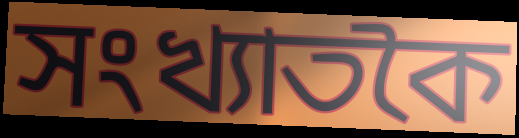
সংখ্যাতকৈ